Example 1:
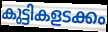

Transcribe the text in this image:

കുട്ടികളടക്കം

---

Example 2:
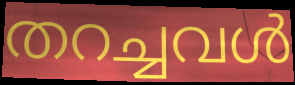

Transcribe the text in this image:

തറച്ചവൾ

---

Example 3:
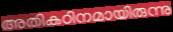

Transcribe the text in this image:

അതികഠിനമായിരുന്നു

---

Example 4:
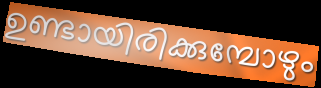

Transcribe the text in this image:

ഉണ്ടായിരിക്കുമ്പോഴും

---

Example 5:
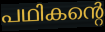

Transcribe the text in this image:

പഥികന്റെ